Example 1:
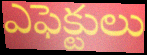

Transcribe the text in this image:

ఎఫెక్టులు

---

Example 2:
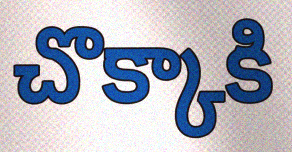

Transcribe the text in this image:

చొక్కాకి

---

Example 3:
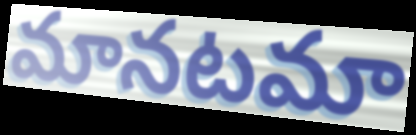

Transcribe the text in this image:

మానటమా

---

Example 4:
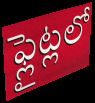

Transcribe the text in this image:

ఫ్లైట్లలో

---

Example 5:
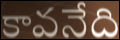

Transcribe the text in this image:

కావనేది